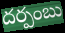
దర్పంబు